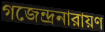
গজেন্দ্রনারায়ণ